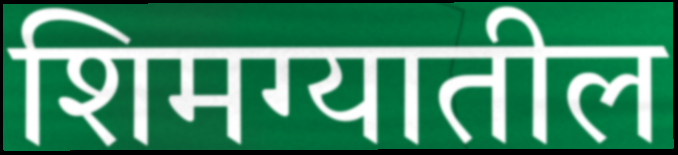
शिमग्यातील